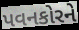
પવનકોરને